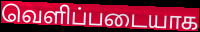
வெளிப்படையாக